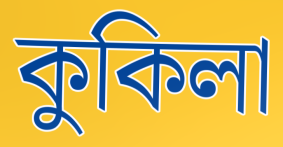
কুকিলা